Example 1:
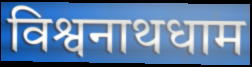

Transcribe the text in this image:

विश्वनाथधाम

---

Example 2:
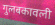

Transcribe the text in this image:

गुलबकावली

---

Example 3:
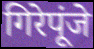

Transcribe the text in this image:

गिरेपूंजे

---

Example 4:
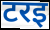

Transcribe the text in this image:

टरइ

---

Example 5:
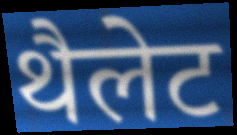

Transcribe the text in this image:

थैलेट